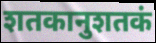
शतकानुशतकं